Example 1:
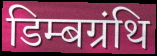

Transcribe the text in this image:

डिम्बग्रंथि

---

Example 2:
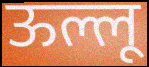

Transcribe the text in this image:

ऊल्लू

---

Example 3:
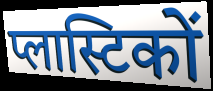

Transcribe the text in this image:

प्लास्टिकों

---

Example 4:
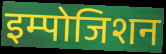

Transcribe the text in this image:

इम्पोजिशन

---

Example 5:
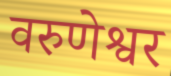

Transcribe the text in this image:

वरुणेश्वर